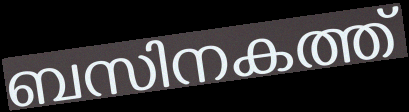
ബസിനകത്ത്